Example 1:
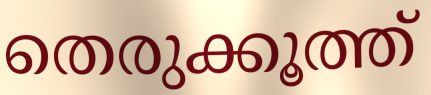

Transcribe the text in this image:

തെരുക്കൂത്ത്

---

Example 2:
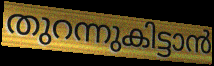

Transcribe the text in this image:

തുറന്നുകിട്ടാൻ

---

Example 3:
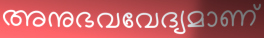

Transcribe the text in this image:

അനുഭവവേദ്യമാണ്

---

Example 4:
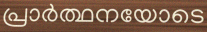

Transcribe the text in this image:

പ്രാർത്ഥനയോടെ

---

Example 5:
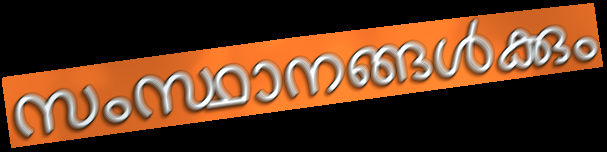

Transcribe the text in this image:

സംസ്ഥാനങ്ങൾക്കും